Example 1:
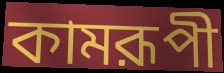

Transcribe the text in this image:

কামরূপী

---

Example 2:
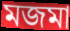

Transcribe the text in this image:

মজমা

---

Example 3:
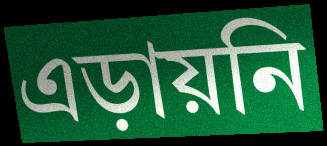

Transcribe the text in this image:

এড়ায়নি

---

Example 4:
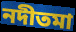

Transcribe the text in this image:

নদীতমা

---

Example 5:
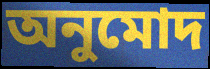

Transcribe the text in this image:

অনুমোদ